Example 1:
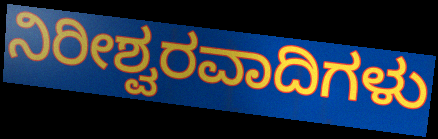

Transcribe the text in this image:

ನಿರೀಶ್ವರವಾದಿಗಳು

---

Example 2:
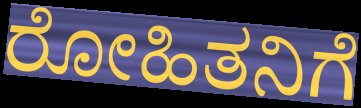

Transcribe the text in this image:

ರೋಹಿತನಿಗೆ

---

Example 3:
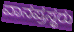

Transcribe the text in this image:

ವಾನಪ್ರಸ್ಥರು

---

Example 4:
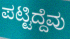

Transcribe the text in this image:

ಪಟ್ಟಿದ್ದೆವು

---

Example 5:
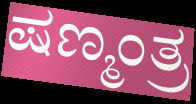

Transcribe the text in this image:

ಷಣ್ಮಂತ್ರ